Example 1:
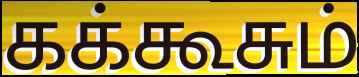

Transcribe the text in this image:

கக்கூசும்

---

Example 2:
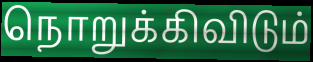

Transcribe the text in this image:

நொறுக்கிவிடும்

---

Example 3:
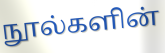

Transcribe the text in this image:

நூல்களின்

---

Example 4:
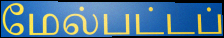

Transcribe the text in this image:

மேல்பட்டப்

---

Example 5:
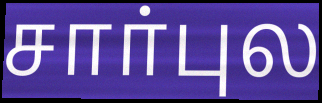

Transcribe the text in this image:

சார்புல